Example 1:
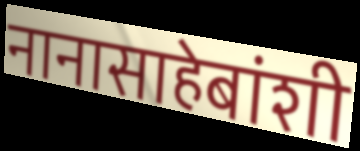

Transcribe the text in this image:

नानासाहेबांशी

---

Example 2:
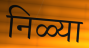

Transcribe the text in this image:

निळ्या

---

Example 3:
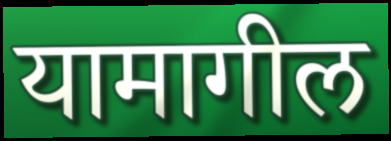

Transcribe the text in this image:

यामागील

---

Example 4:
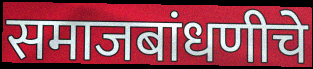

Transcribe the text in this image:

समाजबांधणीचे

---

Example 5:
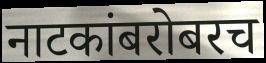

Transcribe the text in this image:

नाटकांबरोबरच